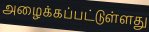
அழைக்கப்பட்டுள்ளது